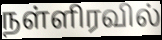
நள்ளிரவில்